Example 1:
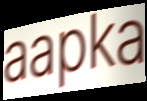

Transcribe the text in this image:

aapka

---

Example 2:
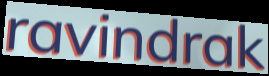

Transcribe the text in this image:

ravindrak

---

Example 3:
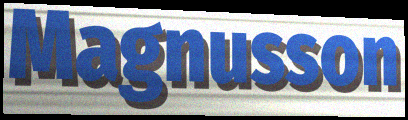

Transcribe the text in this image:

Magnusson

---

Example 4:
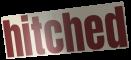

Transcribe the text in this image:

hitched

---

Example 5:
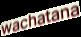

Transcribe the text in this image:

wachatana